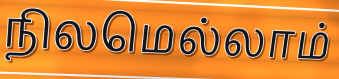
நிலமெல்லாம்